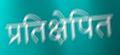
प्रतिक्षेपित